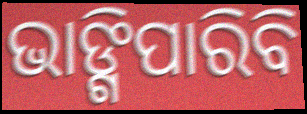
ଭାଙ୍ଗିପାରିବି